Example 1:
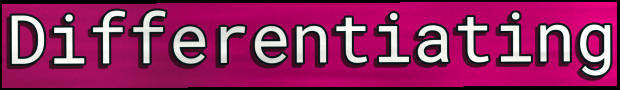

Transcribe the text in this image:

Differentiating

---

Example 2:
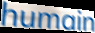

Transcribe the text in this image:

humain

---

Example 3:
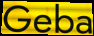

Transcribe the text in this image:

Geba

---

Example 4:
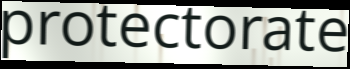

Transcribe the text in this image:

protectorate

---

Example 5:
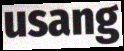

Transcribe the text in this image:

usang